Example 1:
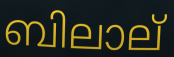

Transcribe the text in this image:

ബിലാല്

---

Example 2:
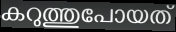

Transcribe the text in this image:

കറുത്തുപോയത്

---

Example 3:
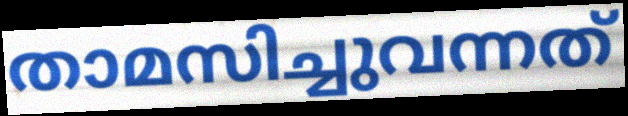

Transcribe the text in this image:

താമസിച്ചുവന്നത്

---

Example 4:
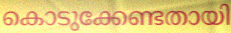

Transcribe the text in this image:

കൊടുക്കേണ്ടതായി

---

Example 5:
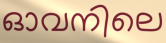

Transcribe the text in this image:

ഓവനിലെ